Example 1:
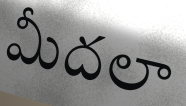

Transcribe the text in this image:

మీదలా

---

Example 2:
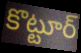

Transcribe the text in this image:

కొట్టూర్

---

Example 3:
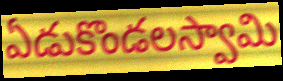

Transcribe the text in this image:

ఏడుకొండలస్వామి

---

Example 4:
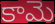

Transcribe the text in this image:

కామె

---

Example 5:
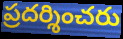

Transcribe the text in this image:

ప్రదర్శించరు